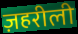
ज़हरीली